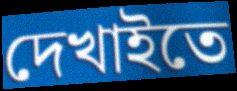
দেখাইতে